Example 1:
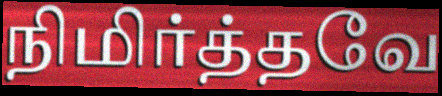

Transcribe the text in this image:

நிமிர்த்தவே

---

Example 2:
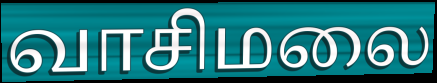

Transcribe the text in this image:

வாசிமலை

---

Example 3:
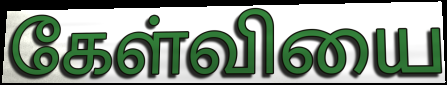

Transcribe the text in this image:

கேள்வியை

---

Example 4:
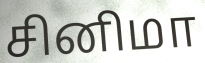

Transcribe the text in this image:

சினிமா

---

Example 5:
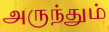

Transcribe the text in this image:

அருந்தும்